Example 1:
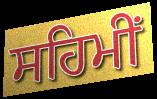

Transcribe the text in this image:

ਸਹਿਮੀਂ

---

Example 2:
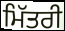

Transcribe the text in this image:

ਮਿੱਤਰੀ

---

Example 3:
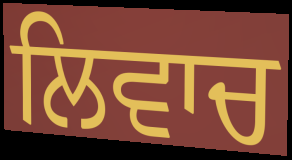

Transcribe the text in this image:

ਲਿਵਾਚ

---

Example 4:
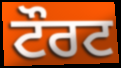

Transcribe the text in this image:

ਟੌਰਟ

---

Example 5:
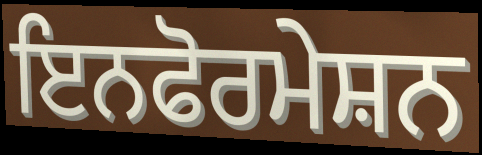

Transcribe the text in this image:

ਇਨਫੋਰਮੇਸ਼ਨ